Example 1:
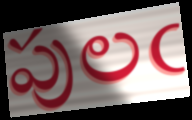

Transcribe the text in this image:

పులఁ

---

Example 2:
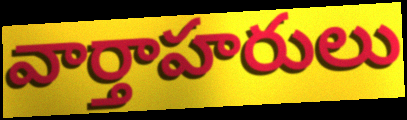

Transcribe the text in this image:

వార్తాహరులు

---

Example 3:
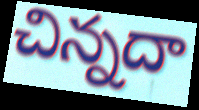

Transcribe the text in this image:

చిన్నదా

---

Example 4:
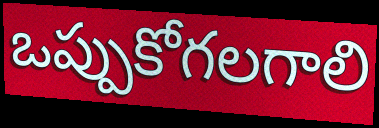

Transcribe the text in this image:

ఒప్పుకోగలగాలి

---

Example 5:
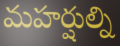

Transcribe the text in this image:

మహర్షుల్ని